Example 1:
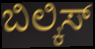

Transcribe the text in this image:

ಬಿಲ್ಕಿಸ್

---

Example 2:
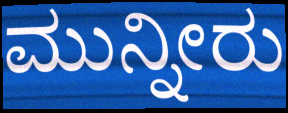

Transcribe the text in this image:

ಮುನ್ನೀರು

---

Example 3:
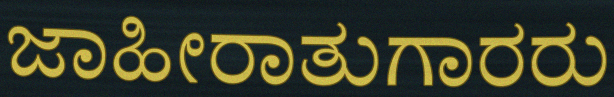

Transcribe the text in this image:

ಜಾಹೀರಾತುಗಾರರು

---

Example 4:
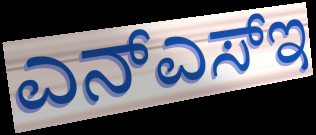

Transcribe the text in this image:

ಎನ್ಎಸ್ಇ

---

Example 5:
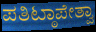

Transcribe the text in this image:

ಪತಿಟ್ಠಾಪೇತ್ವಾ